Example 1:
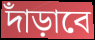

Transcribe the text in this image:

দাঁড়াবে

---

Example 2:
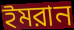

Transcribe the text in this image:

ইমরান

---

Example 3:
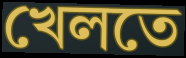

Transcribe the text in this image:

খেলতে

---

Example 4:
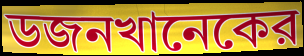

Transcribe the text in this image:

ডজনখানেকের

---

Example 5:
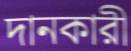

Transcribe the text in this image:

দানকারী